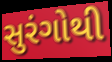
સુરંગોથી